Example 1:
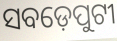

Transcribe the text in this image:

ସବଡ଼େପୁଟୀ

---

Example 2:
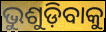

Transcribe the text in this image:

ଭୁଶୁଡ଼ିବାକୁ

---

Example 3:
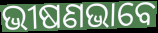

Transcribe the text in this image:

ଭୀଷଣଭାବେ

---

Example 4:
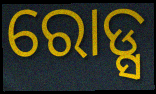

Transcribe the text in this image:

ରୋଡ୍ସ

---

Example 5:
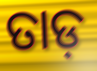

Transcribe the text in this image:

ତାଡ଼